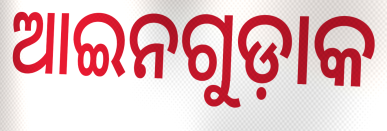
ଆଇନଗୁଡ଼ାକ